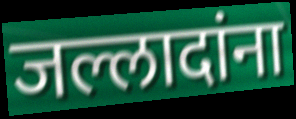
जल्लादांना